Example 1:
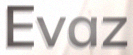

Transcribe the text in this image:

Evaz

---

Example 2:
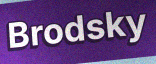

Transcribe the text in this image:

Brodsky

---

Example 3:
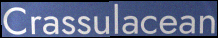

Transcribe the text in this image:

Crassulacean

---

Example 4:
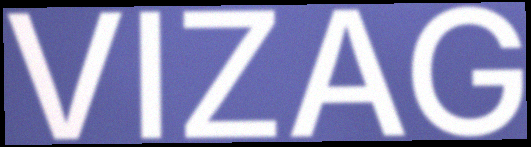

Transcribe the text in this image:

VIZAG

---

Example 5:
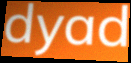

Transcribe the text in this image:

dyad